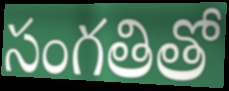
సంగతితో